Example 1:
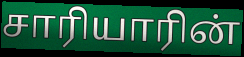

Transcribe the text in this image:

சாரியாரின்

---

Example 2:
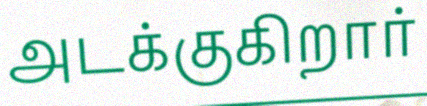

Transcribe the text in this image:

அடக்குகிறார்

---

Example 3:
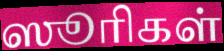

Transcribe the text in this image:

ஸூரிகள்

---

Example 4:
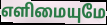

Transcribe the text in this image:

எளிமையுமே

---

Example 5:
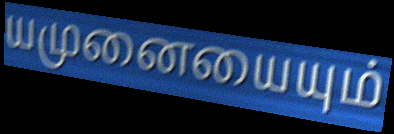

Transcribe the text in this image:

யமுனையையும்